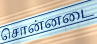
சொன்னடை